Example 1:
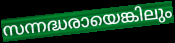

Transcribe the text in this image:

സന്നദ്ധരായെങ്കിലും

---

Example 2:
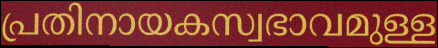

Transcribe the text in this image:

പ്രതിനായകസ്വഭാവമുള്ള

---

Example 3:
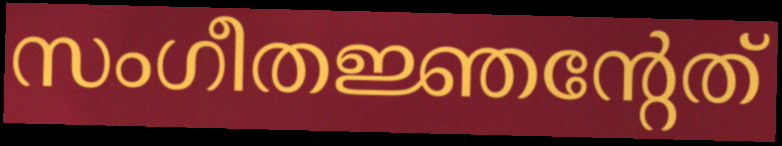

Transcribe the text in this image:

സംഗീതജ്ഞന്റേത്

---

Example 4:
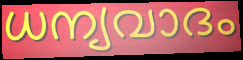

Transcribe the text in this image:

ധന്യവാദം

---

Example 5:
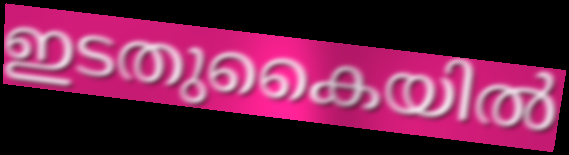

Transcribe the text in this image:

ഇടതുകൈയിൽ